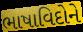
ભાષાવિદોને